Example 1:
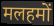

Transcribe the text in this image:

मलहमों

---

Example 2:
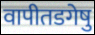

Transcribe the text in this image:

वापीतडगेषु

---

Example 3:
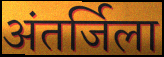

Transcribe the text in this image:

अंतर्जिला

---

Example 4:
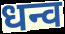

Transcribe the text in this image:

धन्व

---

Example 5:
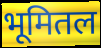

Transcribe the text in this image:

भूमितल